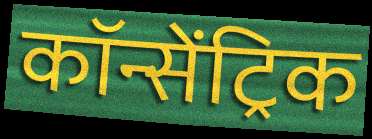
कॉन्सेंट्रिक